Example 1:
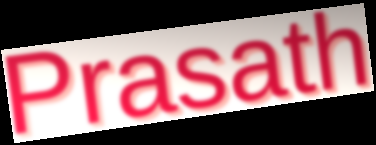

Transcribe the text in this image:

Prasath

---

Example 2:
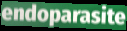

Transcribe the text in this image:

endoparasite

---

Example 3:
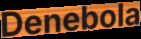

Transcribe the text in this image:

Denebola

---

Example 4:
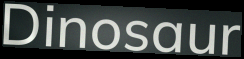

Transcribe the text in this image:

Dinosaur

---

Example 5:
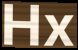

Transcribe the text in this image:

Hx